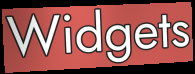
Widgets